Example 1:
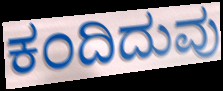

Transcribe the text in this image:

ಕಂದಿದುವು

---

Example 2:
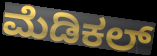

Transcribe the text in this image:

ಮೆಡಿಕಲ್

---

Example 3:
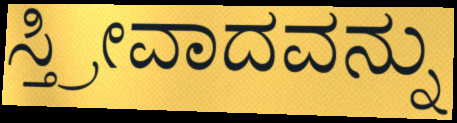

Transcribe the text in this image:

ಸ್ತ್ರೀವಾದವನ್ನು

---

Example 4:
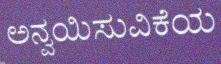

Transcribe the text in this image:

ಅನ್ವಯಿಸುವಿಕೆಯ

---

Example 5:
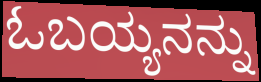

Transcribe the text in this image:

ಓಬಯ್ಯನನ್ನು